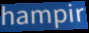
hampir